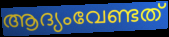
ആദ്യംവേണ്ടത്